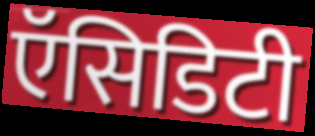
ऍसिडिटी